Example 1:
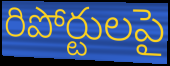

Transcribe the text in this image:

రిపోర్టులపై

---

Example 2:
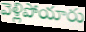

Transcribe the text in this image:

వెళ్లిపోయారు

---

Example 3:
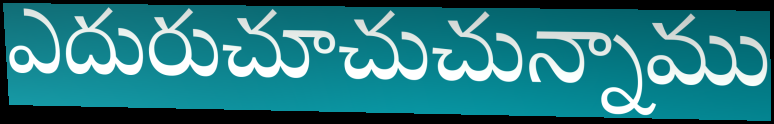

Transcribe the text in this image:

ఎదురుచూచుచున్నాము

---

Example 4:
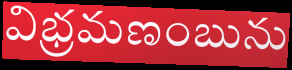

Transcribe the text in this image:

విభ్రమణంబును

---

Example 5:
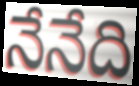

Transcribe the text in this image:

నేనేది